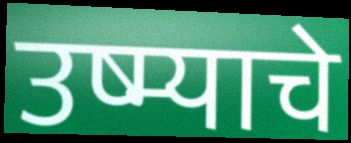
उष्म्याचे